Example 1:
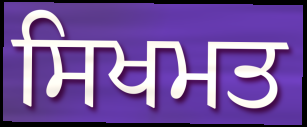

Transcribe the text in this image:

ਸਿਖਮਤ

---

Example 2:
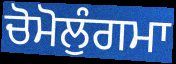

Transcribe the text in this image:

ਚੋਮੋਲੁੰਗਮਾ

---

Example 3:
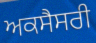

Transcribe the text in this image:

ਅਕਸੈਸਰੀ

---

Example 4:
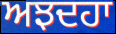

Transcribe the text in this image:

ਅਝਦਹਾ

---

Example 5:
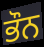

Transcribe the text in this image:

ਭੌਨ